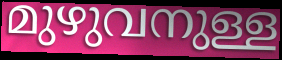
മുഴുവനുള്ള